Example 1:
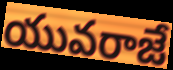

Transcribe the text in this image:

యువరాజే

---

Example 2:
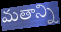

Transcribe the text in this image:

మతాన్ని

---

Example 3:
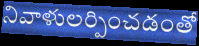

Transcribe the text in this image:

నివాళులర్పించడంతో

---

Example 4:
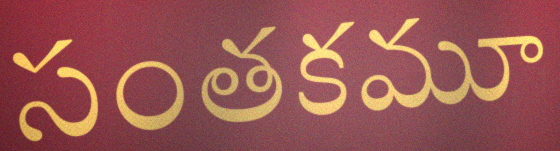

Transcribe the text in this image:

సంతకమూ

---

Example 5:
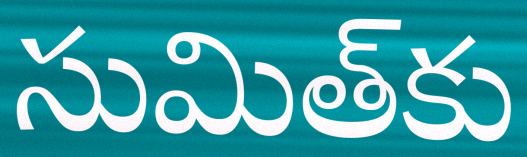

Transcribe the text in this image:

సుమిత్‌కు